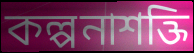
কল্পনাশক্তি